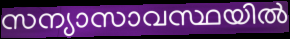
സന്യാസാവസ്ഥയിൽ